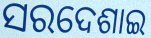
ସରଦେଶାଇ